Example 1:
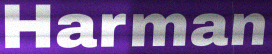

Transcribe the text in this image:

Harman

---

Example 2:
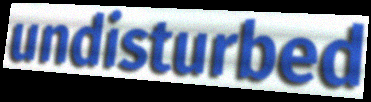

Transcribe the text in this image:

undisturbed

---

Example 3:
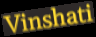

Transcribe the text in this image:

Vinshati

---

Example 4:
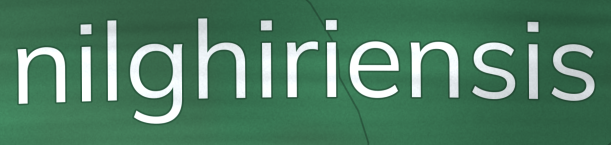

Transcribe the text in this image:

nilghiriensis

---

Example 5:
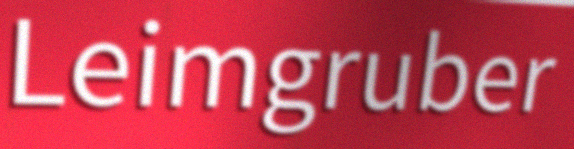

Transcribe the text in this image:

Leimgruber